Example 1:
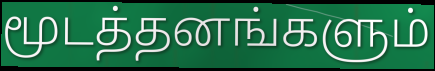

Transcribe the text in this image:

மூடத்தனங்களும்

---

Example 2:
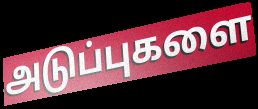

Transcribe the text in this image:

அடுப்புகளை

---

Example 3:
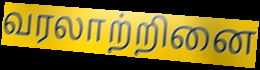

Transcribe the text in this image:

வரலாற்றினை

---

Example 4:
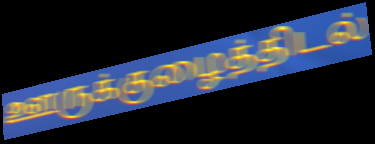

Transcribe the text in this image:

ஊருக்குழைத்திடல்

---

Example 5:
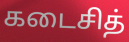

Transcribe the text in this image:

கடைசித்